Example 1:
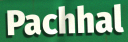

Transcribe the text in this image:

Pachhal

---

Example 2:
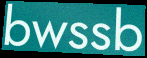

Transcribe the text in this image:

bwssb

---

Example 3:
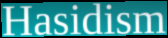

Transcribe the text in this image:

Hasidism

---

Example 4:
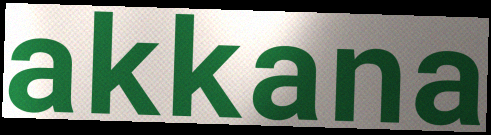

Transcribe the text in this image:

akkana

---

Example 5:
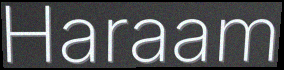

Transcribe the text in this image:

Haraam